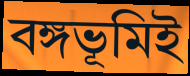
বঙ্গভূমিই